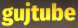
gujtube